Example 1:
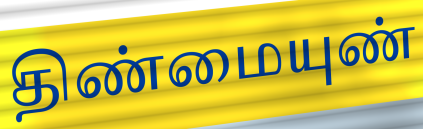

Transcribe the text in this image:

திண்மையுண்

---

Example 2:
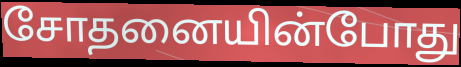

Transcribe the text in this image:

சோதனையின்போது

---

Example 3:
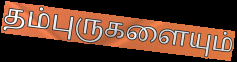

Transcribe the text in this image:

தம்புருகளையும்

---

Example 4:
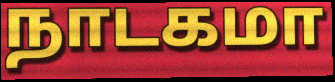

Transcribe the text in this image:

நாடகமா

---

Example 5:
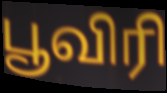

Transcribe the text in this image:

பூவிரி